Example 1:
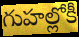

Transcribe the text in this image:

గుహల్లోకీ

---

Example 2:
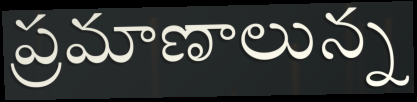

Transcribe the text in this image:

ప్రమాణాలున్న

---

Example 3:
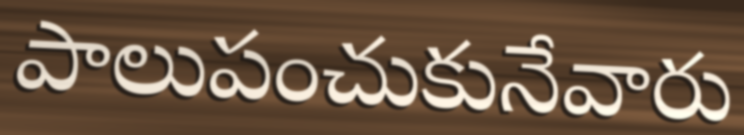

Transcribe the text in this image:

పాలుపంచుకునేవారు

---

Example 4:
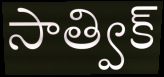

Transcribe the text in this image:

సాత్విక్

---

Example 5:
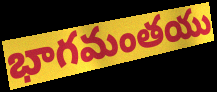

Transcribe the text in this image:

భాగమంతయు